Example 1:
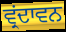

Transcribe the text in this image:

ਵ੍ਰਂਦਾਵਨ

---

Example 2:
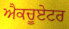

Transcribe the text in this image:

ਐਕਚੂਏਟਰ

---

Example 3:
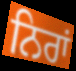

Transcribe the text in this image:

ਨਿਰਾਂ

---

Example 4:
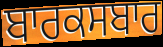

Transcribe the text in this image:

ਬਾਰਕਸਬਾਰ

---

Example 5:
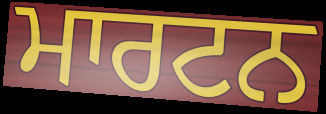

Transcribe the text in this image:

ਮਾਰਟਨ